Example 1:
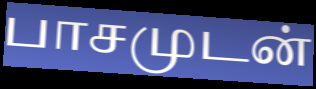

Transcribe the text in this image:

பாசமுடன்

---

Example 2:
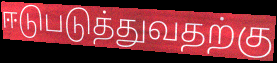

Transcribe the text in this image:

ஈடுபடுத்துவதற்கு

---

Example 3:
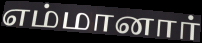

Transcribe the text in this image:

எம்மானார்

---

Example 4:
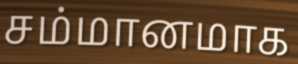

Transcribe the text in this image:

சம்மானமாக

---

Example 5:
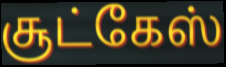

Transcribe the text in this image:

சூட்கேஸ்